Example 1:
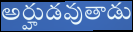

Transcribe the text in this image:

అర్హుడవుతాడు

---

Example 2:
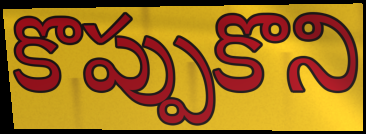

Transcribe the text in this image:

కొప్పుకొని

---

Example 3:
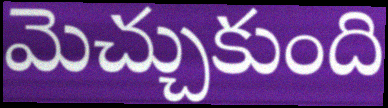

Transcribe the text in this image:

మెచ్చుకుంది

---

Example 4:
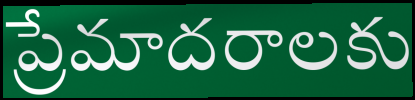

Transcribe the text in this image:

ప్రేమాదరాలకు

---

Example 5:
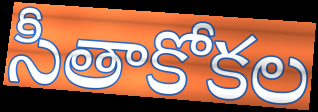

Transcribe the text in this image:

సీతాకోకల